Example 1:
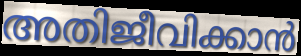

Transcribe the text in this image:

അതിജീവിക്കാൻ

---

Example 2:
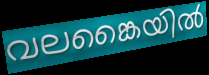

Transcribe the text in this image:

വലങ്കൈയിൽ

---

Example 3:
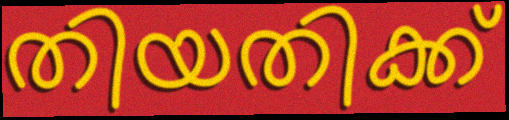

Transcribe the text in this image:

തിയതിക്ക്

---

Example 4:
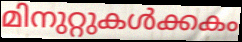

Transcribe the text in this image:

മിനുറ്റുകൾക്കകം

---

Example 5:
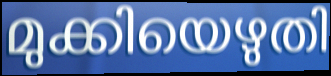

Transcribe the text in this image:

മുക്കിയെഴുതി